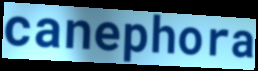
canephora